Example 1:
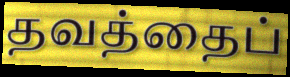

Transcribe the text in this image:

தவத்தைப்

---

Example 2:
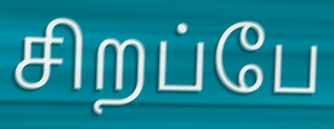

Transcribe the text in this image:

சிறப்பே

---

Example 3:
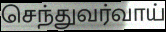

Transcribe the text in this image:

செந்துவர்வாய்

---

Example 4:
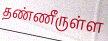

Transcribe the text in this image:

தண்ணீருள்ள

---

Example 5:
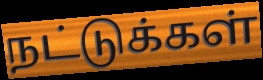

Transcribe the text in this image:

நட்டுக்கள்